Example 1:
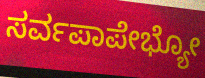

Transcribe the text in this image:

ಸರ್ವಪಾಪೇಭ್ಯೋ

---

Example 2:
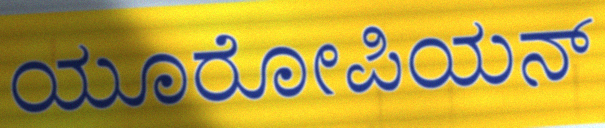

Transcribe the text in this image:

ಯೂರೋಪಿಯನ್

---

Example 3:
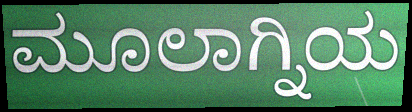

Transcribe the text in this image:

ಮೂಲಾಗ್ನಿಯ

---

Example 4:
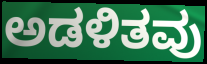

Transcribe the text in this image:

ಅಡಳಿತವು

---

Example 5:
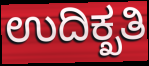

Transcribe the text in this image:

ಉದಿಕ್ಖತಿ